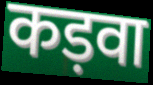
कड़वा